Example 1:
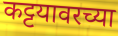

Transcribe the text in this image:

कट्टयावरच्या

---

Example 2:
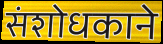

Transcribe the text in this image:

संशोधकाने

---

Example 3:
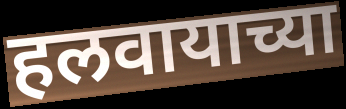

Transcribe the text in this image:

हलवायाच्या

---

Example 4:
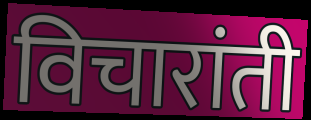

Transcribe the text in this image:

विचारांती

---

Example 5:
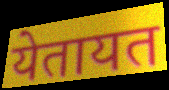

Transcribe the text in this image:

येतायत